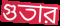
গুতার